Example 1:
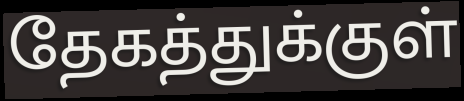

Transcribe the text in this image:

தேகத்துக்குள்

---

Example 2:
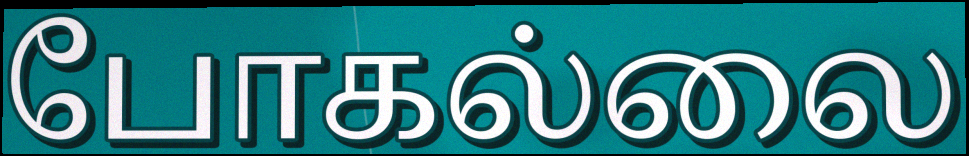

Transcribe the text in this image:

போகல்லை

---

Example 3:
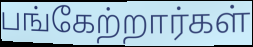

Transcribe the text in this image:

பங்கேற்றார்கள்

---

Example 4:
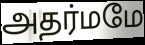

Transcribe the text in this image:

அதர்மமே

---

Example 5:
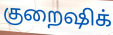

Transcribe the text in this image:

குறைஷிக்